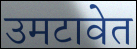
उमटावेत